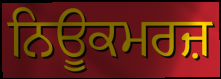
ਨਿਊਕਮਰਜ਼